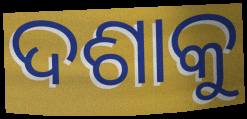
ଦଶାକୁ